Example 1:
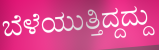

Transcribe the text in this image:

ಬೆಳೆಯುತ್ತಿದ್ದದ್ದು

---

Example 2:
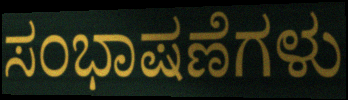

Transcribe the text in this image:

ಸಂಭಾಷಣೆಗಳು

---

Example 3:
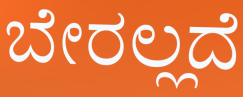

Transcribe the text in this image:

ಬೇರಲ್ಲದೆ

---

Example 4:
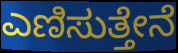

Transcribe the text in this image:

ಎಣಿಸುತ್ತೇನೆ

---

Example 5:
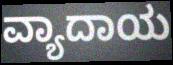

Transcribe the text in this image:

ವ್ಯಾದಾಯ